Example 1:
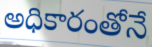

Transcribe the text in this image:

అధికారంతోనే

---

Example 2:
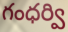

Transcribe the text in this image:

గంధర్వి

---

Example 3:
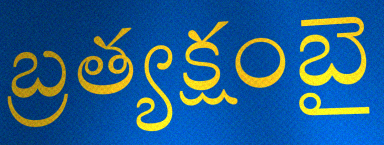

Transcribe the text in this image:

బ్రత్యక్షంబై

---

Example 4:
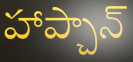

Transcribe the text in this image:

హాప్చాన్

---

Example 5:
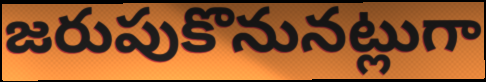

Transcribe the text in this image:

జరుపుకొనునట్లుగా